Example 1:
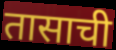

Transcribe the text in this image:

तासाची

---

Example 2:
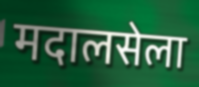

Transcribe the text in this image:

मदालसेला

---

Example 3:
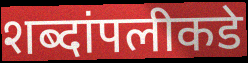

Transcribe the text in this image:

शब्दांपलीकडे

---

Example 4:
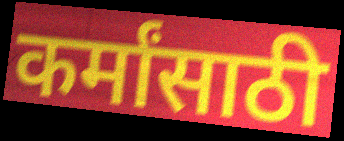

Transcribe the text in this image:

कर्मांसाठी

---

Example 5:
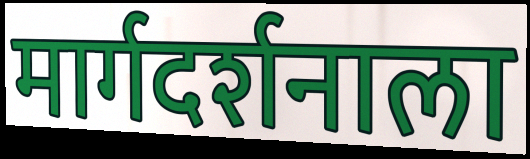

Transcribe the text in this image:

मार्गदर्शनाला